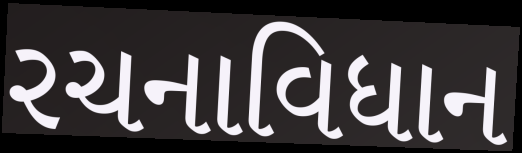
રચનાવિધાન